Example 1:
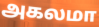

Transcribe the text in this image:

அகலமா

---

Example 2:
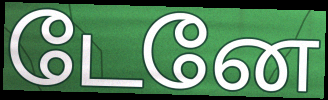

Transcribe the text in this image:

டேனே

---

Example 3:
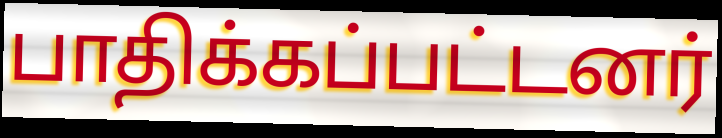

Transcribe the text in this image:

பாதிக்கப்பட்டனர்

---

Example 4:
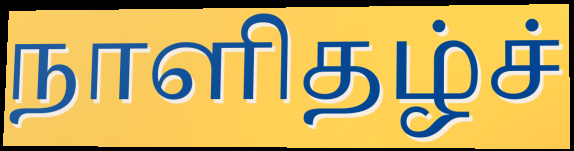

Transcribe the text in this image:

நாளிதழ்ச்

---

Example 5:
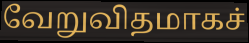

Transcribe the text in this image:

வேறுவிதமாகச்